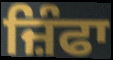
ਜ਼ਿੰਫਾ